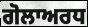
ਗੋਲਾਅਰਧ